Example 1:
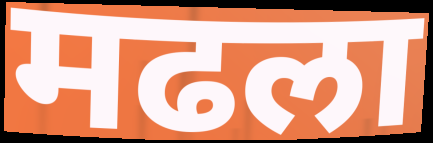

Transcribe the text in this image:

मढला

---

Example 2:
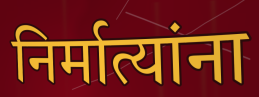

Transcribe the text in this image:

निर्मात्यांना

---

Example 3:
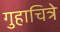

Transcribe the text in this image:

गुहाचित्रे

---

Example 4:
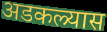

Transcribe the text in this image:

अडकल्यास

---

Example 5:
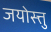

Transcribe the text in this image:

जयोस्त्तु